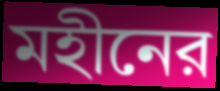
মহীনের